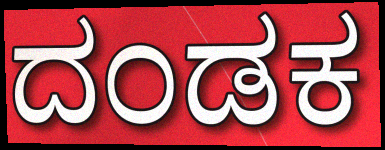
ದಂಡಕ